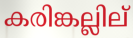
കരിങ്കല്ലില്